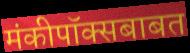
मंकीपॉक्सबाबत